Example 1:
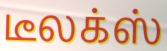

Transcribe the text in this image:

டீலக்ஸ்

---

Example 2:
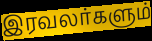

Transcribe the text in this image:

இரவலர்களும்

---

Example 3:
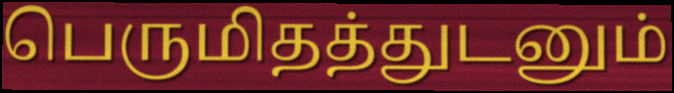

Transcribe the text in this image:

பெருமிதத்துடனும்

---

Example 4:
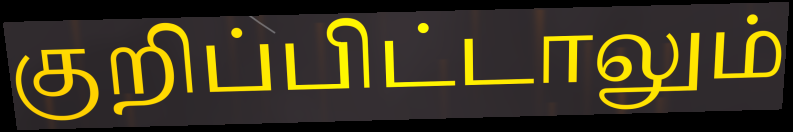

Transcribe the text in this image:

குறிப்பிட்டாலும்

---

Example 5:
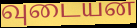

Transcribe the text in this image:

வுடையன